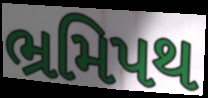
ભ્રમિપથ